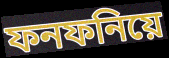
ফনফনিয়ে